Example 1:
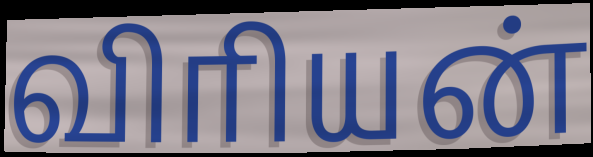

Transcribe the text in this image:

விரியன்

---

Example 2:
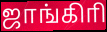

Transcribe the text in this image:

ஜாங்கிரி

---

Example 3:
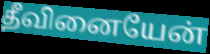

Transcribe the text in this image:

தீவினையேன்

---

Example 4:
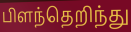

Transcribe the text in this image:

பிளந்தெறிந்து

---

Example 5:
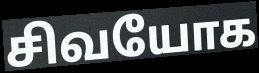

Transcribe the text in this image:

சிவயோக